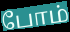
போம்